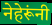
नेहेरूंनी